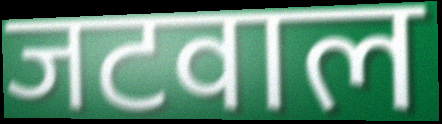
जटवाल